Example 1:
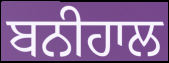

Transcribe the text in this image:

ਬਨੀਹਾਲ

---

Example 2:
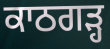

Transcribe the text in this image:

ਕਾਠਗਡ਼੍ਹ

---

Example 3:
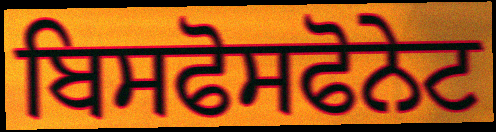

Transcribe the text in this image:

ਬਿਸਫੋਸਫੋਨੇਟ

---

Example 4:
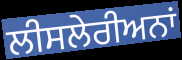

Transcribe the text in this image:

ਲੀਸਲੇਰੀਅਨਾਂ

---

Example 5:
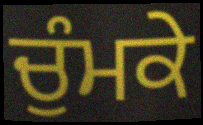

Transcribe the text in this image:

ਚੁੰਮਕੇ